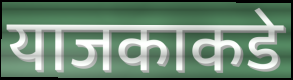
याजकाकडे